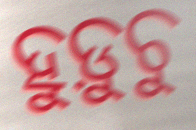
ହୁଡ଼ୁଚୁ